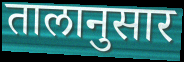
तालानुसार